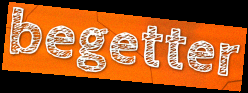
begetter